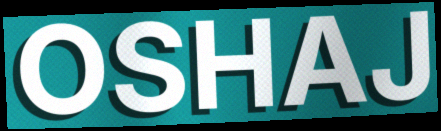
OSHAJ